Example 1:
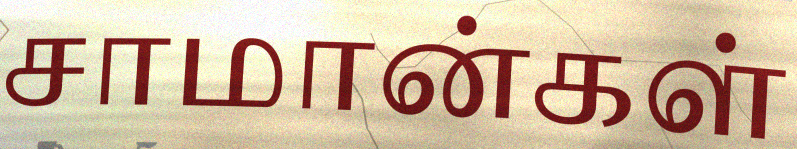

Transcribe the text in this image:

சாமான்கள்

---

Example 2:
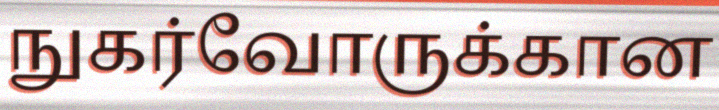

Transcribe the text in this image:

நுகர்வோருக்கான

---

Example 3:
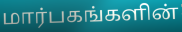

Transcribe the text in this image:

மார்பகங்களின்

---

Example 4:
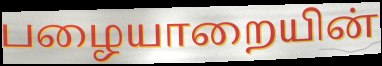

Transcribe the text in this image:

பழையாறையின்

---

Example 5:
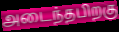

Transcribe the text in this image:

அடைந்தபிறகு